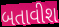
બતાવીશ